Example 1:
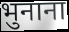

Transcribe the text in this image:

भुनाना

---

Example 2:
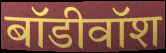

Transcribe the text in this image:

बॉडीवॉश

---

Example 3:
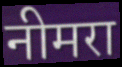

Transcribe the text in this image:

नीमरा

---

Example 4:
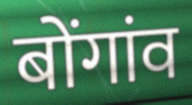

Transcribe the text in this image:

बोंगांव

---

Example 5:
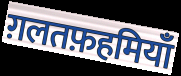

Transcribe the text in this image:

ग़लतफ़हमियाँ